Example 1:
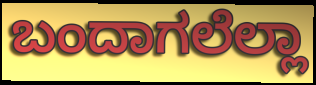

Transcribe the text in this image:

ಬಂದಾಗಲೆಲ್ಲಾ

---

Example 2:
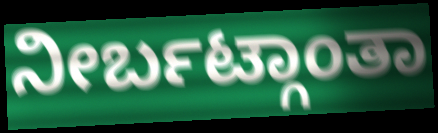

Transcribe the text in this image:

ನೀರ್ಬಟ್ಗಾಂತಾ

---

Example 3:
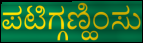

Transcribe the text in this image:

ಪಟಿಗ್ಗಣ್ಹಿಂಸು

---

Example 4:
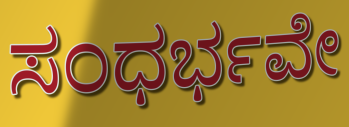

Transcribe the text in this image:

ಸಂಧರ್ಭವೇ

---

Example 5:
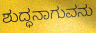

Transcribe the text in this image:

ಶುದ್ಧನಾಗುವನು